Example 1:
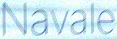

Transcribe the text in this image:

Navale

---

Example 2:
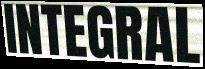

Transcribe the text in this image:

INTEGRAL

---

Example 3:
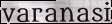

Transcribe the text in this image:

varanasi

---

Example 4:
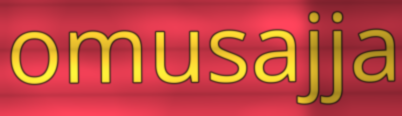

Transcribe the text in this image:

omusajja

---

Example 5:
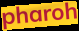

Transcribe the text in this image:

pharoh